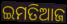
ଇମତିଆଜ